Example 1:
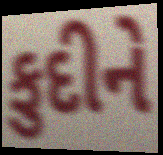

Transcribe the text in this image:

કુદીને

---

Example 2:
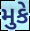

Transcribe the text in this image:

મુકે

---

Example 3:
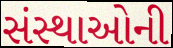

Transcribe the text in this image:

સંસ્થાઓની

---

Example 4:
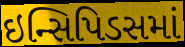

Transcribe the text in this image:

ઇન્સિપિડસમાં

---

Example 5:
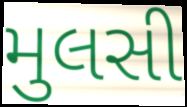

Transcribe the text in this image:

મુલસી